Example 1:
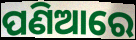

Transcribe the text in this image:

ପଣିଆରେ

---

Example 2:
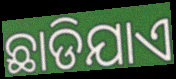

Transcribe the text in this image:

ଛାଡିଯାଏ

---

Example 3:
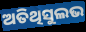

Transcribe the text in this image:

ଅତିଥିସୁଲଭ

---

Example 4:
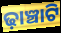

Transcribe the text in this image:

ଢ଼ାଞ୍ଚାଟି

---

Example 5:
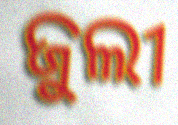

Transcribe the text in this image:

ଜୁଲୀ